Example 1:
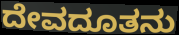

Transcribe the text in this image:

ದೇವದೂತನು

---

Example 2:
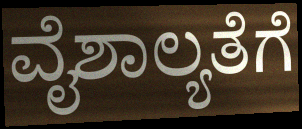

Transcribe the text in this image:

ವೈಶಾಲ್ಯತೆಗೆ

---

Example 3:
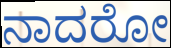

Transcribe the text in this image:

ನಾದರೋ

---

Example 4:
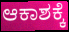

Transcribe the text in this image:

ಆಕಾಶಕ್ಕೆ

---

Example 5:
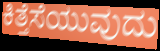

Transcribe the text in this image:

ಕಿತ್ತೆಸೆಯುವುದು